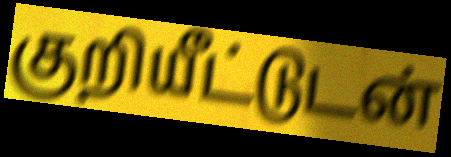
குறியீட்டுடன்